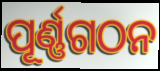
ପୂର୍ଣ୍ଣଗଠନ